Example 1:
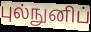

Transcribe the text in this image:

புல்நுனிப்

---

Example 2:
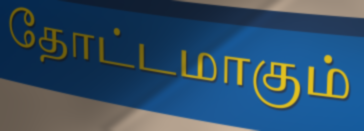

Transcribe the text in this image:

தோட்டமாகும்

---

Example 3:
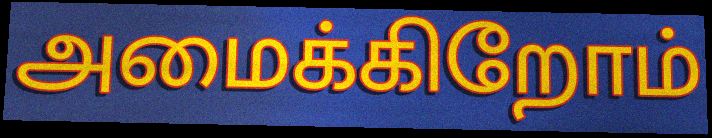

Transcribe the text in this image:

அமைக்கிறோம்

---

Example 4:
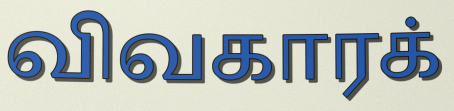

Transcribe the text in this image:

விவகாரக்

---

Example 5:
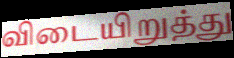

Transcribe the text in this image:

விடையிறுத்து